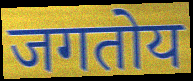
जगतोय